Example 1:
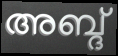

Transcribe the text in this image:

അബ്ദ്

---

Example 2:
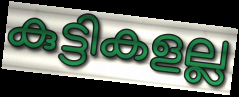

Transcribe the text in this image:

കുട്ടികളല്ല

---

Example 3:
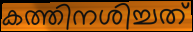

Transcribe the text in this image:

കത്തിനശിച്ചത്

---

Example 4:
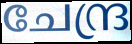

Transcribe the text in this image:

ചേന്ദ്ര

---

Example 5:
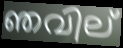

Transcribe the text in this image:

ഞവില്